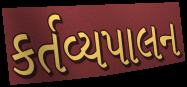
કર્તવ્યપાલન